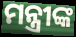
ମନ୍ତ୍ରୀଙ୍କ